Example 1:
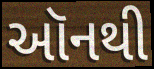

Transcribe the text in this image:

ઑનથી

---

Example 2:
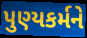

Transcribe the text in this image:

પુણ્યકર્મને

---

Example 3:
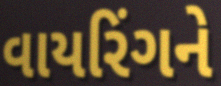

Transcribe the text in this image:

વાયરિંગને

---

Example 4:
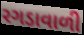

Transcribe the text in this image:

રગડાવાળી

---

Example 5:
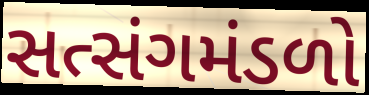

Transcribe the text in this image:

સત્સંગમંડળો